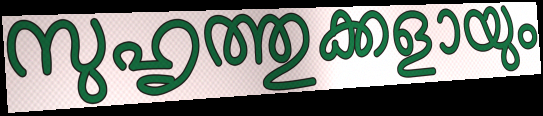
സുഹൃത്തുക്കളായും